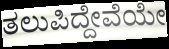
ತಲುಪಿದ್ದೇವೆಯೇ